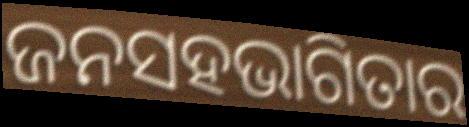
ଜନସହଭାଗିତାର